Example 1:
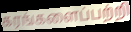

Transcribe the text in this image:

கரங்களைப்பற்றி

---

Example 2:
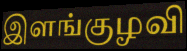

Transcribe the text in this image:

இளங்குழவி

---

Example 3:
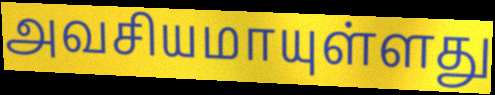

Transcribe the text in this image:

அவசியமாயுள்ளது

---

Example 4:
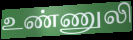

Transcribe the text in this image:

உண்ணுலி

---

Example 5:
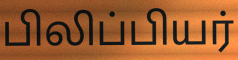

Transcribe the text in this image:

பிலிப்பியர்